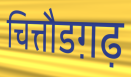
चित्तौडग़ढ़